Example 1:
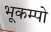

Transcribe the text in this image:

भूकम्पो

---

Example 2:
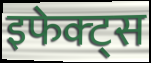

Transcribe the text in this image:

इफेक्‍ट्स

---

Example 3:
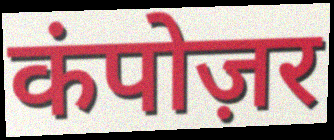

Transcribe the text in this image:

कंपोज़र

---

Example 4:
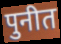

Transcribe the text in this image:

पुनीत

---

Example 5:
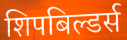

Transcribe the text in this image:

शिपबिल्डर्स